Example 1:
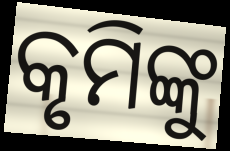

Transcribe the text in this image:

କୃମିଙ୍କୁ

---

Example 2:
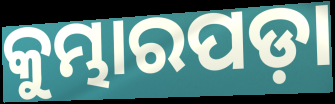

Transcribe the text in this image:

କୁମ୍ଭାରପଡ଼ା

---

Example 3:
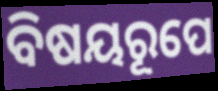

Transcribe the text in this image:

ବିଷୟରୂପେ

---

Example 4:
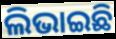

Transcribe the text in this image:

ଲିଭାଇଛି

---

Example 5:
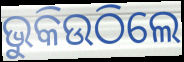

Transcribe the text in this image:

ଭୁକିଉଠିଲେ